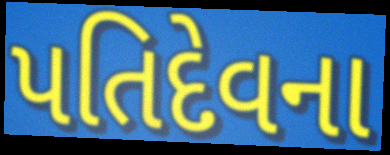
પતિદેવના